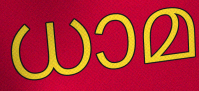
ധാമ